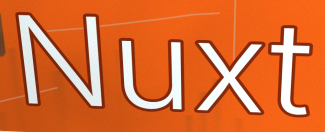
Nuxt